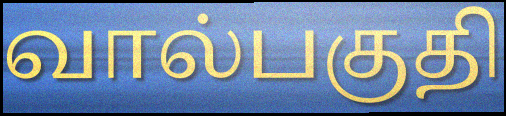
வால்பகுதி